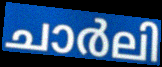
ചാർലി